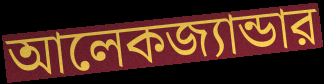
আলেকজ্যান্ডার